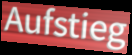
Aufstieg